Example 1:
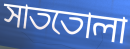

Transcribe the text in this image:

সাততোলা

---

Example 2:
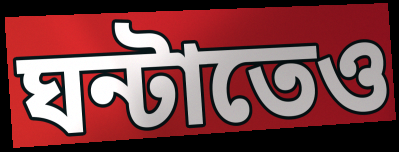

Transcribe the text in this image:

ঘন্টাতেও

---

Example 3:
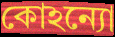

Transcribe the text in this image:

কোঽন্যো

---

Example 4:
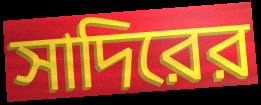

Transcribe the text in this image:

সাদিরের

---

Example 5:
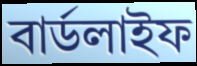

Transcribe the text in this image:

বার্ডলাইফ